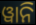
ୱାନି